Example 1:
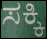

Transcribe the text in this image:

ಸಕ್ಕಿ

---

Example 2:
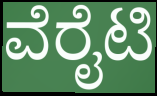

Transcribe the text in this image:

ವೆರೈಟಿ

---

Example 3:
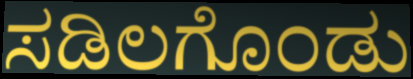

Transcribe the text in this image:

ಸಡಿಲಗೊಂಡು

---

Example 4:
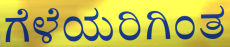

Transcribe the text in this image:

ಗೆಳೆಯರಿಗಿಂತ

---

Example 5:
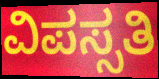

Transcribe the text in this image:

ವಿಪಸ್ಸತಿ